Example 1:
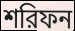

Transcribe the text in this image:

শরিফন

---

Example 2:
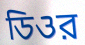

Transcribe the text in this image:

ডিওর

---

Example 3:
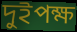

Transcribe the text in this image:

দুইপক্ষ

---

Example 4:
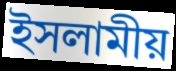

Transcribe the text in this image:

ইসলামীয়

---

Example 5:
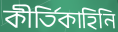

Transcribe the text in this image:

কীর্তিকাহিনি